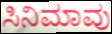
ಸಿನಿಮಾವು